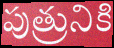
పుత్రునికి